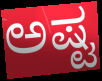
ಅಷ್ಟ